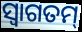
ସ୍ୱାଗତମ୍